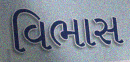
વિભાસ